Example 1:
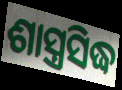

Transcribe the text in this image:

ଶାସ୍ତ୍ରସିଦ୍ଧ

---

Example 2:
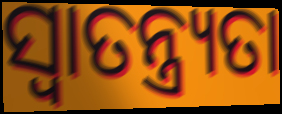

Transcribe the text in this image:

ସ୍ୱାତନ୍ତ୍ର୍ୟତା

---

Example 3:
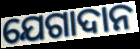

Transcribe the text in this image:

ଯେଗାଦାନ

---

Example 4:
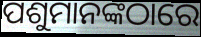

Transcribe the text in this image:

ପଶୁମାନଙ୍କଠାରେ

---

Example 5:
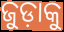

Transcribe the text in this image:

ଜୁଡ଼ାକୁ